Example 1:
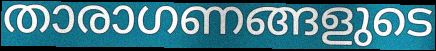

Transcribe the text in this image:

താരാഗണങ്ങളുടെ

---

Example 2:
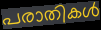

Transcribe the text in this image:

പരാതികൾ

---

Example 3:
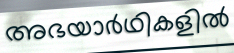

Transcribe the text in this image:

അഭയാർഥികളിൽ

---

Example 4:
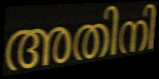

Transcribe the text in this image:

അതിനി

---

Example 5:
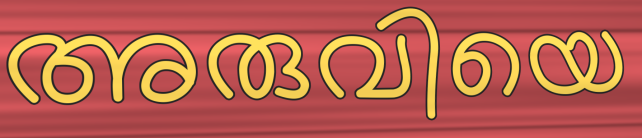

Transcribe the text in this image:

അരുവിയെ